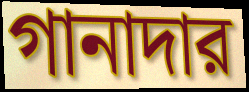
গানাদার